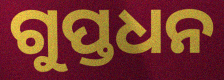
ଗୁପ୍ତଧନ